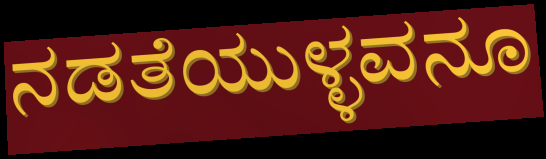
ನಡತೆಯುಳ್ಳವನೂ